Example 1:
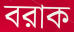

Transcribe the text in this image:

বরাক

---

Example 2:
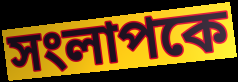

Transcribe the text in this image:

সংলাপকে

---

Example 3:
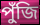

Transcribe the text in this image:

পুঁজি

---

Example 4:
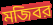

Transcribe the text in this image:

মজিবর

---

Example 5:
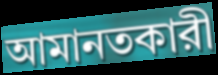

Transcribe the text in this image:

আমানতকারী